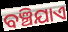
ବଞ୍ଚିଯାଏ